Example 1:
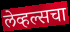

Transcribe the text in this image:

लेव्हल्सचा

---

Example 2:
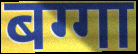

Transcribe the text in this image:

बग्गा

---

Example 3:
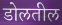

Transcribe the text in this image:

डोलतील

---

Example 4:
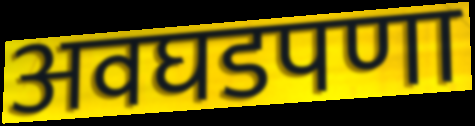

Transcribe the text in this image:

अवघडपणा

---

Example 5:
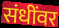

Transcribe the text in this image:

संधींवर